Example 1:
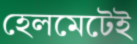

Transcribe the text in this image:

হেলমেটেই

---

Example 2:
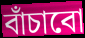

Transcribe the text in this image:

বাঁচাবো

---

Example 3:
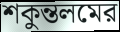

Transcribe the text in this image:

শকুন্তলমের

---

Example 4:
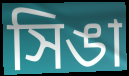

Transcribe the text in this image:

সিঙা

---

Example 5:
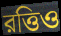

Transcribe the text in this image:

রত্তিও